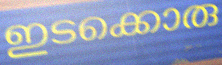
ഇടക്കൊരു